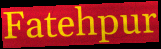
Fatehpur